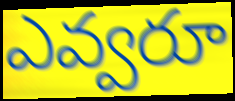
ఎవ్వరూ